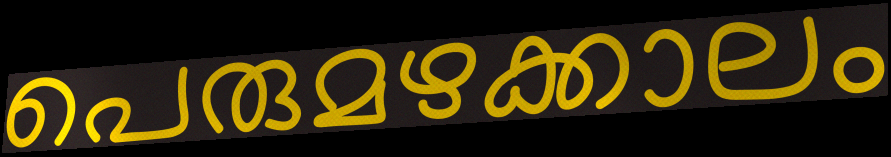
പെരുമഴക്കാലം